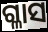
ଗ୍ଳାସ